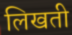
लिखती